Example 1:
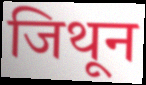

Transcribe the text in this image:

जिथून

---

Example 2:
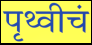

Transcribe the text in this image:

पृथ्वीचं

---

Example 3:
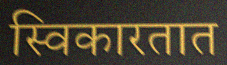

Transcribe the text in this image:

स्विकारतात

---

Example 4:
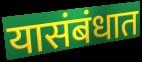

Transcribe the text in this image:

यासंबंधात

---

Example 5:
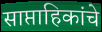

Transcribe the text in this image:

साप्ताहिकांचे